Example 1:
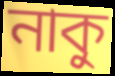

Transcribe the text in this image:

নাকু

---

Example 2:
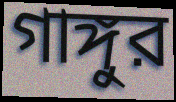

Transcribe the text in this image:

গাঙ্গুর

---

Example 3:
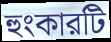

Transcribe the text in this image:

হুংকারটি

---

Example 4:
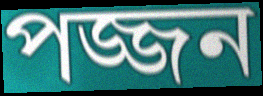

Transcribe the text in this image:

পজ্জন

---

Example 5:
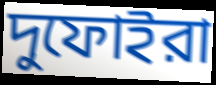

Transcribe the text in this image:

দুফোইরা